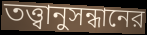
তত্ত্বানুসন্ধানের